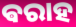
ଵରାହ